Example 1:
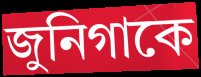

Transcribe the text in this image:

জুনিগাকে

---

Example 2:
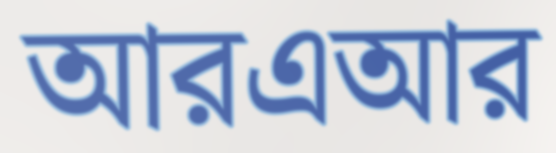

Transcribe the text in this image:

আরএআর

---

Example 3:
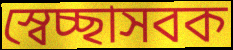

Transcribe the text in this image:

স্বেচ্ছাসবক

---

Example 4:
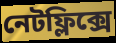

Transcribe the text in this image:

নেটফ্লিক্সে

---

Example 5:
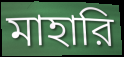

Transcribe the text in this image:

মাহারি